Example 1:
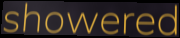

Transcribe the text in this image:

showered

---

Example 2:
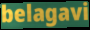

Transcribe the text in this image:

belagavi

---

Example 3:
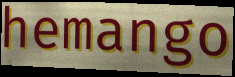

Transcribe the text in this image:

hemango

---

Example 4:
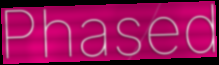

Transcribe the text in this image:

Phased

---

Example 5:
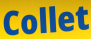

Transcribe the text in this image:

Collet